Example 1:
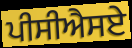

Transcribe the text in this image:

ਪੀਸੀਐਸਏ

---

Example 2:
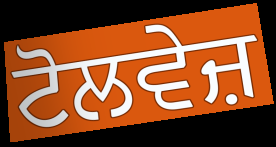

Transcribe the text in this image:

ਟੋਲਵੇਜ਼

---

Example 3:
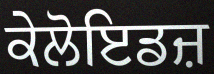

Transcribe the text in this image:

ਕੇਲੋਇਡਜ਼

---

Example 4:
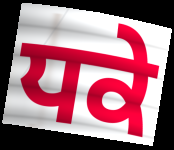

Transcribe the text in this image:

ਧਕੇ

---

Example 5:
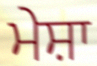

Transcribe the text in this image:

ਮੇਸ਼ਾ